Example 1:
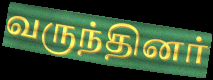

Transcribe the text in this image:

வருந்தினர்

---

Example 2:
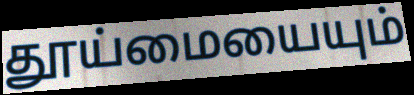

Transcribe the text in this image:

தூய்மையையும்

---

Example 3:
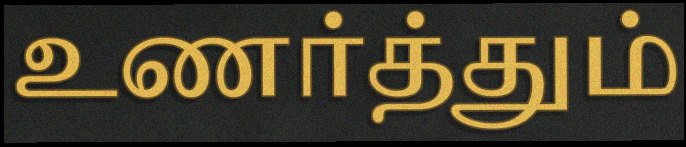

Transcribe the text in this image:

உணர்த்தும்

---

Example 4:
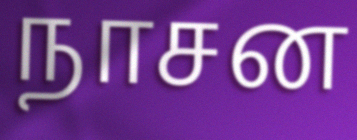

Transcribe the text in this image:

நாசன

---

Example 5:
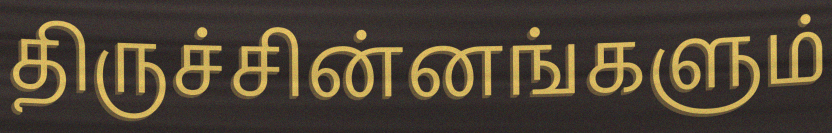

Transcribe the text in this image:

திருச்சின்னங்களும்